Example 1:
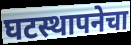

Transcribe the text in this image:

घटस्थापनेचा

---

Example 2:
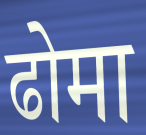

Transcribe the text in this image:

ढोमा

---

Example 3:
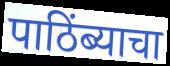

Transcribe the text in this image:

पाठिंब्याचा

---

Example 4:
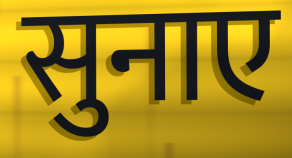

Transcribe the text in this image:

सुनाए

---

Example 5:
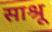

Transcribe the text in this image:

साश्रू